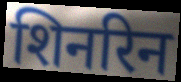
शिनरिन